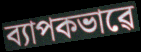
ব্যাপকভাৱে